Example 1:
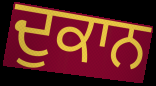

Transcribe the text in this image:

ਦੁਕਾਨ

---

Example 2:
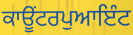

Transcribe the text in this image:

ਕਾਊਂਟਰਪੁਆਇੰਟ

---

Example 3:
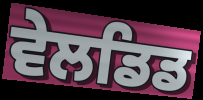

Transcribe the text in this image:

ਵੇਲਡਿਡ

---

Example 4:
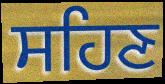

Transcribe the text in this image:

ਸਹਿਣ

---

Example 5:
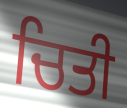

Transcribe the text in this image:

ਚਿਤੀ